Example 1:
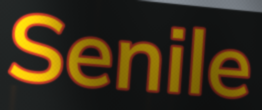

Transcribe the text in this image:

Senile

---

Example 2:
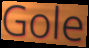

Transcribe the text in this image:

Gole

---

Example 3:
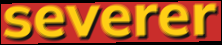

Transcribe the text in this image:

severer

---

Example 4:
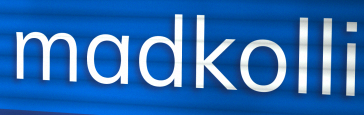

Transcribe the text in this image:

madkolli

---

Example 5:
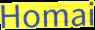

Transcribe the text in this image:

Homai